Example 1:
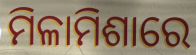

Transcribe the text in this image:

ମିଳାମିଶାରେ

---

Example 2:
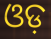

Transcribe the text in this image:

ଓଡ଼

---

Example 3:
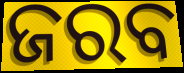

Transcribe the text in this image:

ଜରବ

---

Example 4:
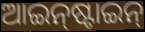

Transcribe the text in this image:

ଆଇନ୍‌ଷ୍ଟାଇନ୍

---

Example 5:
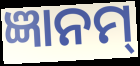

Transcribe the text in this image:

ଜ୍ଞାନମ୍